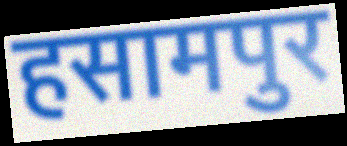
हसामपुर